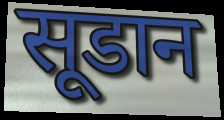
सूडान